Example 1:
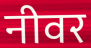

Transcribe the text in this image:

नीवर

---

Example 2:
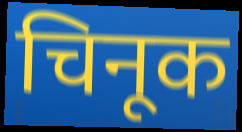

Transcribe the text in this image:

चिनूक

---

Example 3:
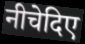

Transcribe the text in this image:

नीचेदिए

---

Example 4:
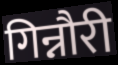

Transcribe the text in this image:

गिन्नौरी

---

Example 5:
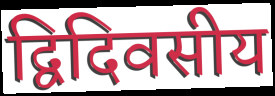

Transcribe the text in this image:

द्विदिवसीय